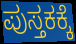
ಪುಸ್ತಕಕ್ಕೆ